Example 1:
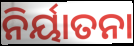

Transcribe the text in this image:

ନିର୍ୟାତନା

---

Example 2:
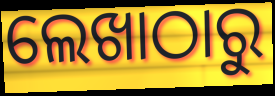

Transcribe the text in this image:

ଲେଖାଠାରୁ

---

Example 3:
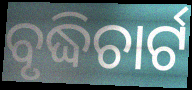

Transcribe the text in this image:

ବୃଦ୍ଧିଚାର୍ଟ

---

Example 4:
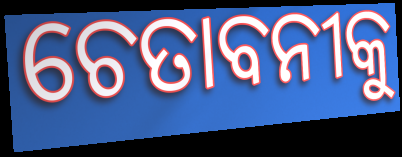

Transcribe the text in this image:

ଚେତାବନୀକୁ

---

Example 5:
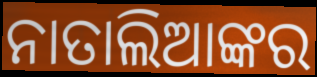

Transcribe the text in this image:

ନାତାଲିଆଙ୍କର